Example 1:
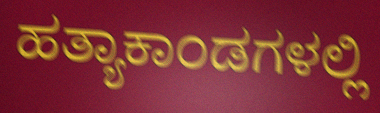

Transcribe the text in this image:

ಹತ್ಯಾಕಾಂಡಗಳಲ್ಲಿ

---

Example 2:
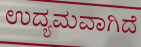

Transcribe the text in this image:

ಉದ್ಯಮವಾಗಿದೆ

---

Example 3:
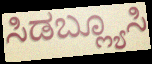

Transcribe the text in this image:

ಸಿಡಬ್ಲ್ಯೂಸಿ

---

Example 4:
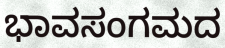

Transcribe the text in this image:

ಭಾವಸಂಗಮದ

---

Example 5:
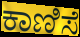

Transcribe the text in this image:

ಕಾಣಿಸೆ